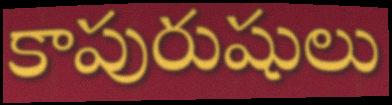
కాపురుషులు